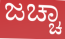
ಜಚ್ಚಾ